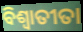
ବିଶ୍ଵାତୀତା